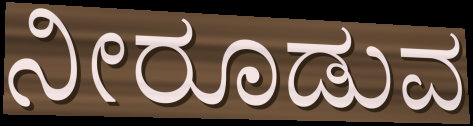
ನೀರೂಡುವ